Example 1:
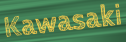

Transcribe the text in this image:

Kawasaki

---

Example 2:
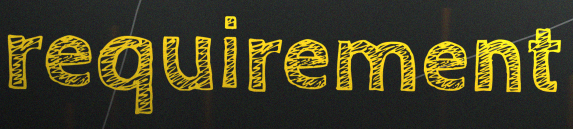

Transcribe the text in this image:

requirement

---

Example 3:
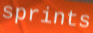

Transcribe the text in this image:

sprints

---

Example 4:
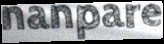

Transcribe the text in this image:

nanpare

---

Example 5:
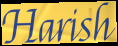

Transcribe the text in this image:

Harish